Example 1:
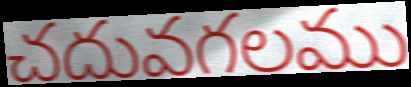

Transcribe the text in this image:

చదువగలము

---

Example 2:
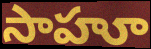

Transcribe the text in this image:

సాహూ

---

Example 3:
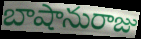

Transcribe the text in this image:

బాషానురాజు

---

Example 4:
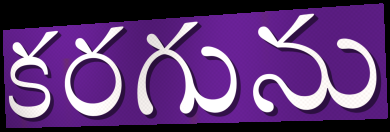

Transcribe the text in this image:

కరగును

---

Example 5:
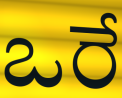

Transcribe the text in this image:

ఒరే